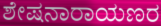
ಶೇಷನಾರಾಯಣರ